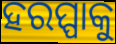
ହରପ୍ପାକୁ